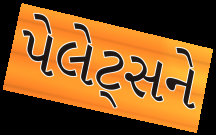
પેલેટ્સને